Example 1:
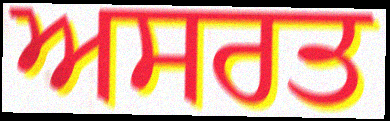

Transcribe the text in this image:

ਅਸਰਤ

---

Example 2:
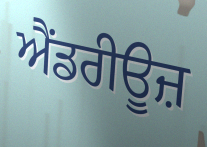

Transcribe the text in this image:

ਐਂਡਰੀਊਜ਼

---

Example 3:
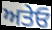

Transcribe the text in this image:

ਅਤੇਓ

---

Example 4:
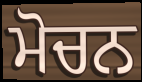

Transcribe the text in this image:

ਮੋਚਨ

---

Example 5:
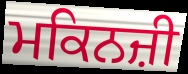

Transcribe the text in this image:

ਮਕਿਨਜ਼ੀ